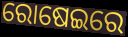
ରୋଷେଇରେ